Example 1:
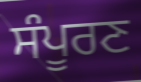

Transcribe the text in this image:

ਸੰਪੂਰਣ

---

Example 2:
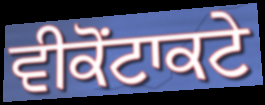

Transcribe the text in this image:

ਵੀਕੋਂਟਾਕਟੇ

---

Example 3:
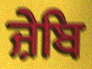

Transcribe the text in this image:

ਜ਼ੇਬਿ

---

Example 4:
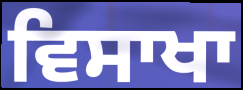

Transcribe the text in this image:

ਵਿਸਾਖਾ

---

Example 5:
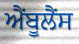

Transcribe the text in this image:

ਐਂਬੂਲੈਂਸ